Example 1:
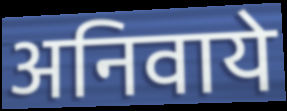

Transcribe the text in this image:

अनिवाये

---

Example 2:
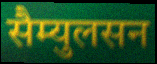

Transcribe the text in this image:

सैम्युलसन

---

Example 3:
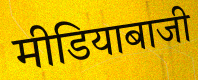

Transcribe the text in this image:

मीडियाबाजी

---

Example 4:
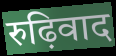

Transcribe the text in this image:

रुढ़िवाद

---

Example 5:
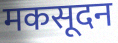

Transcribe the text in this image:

मकसूदन